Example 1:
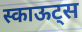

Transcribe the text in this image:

स्काऊट्स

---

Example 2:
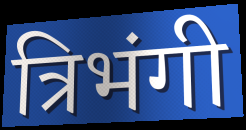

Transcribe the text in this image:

त्रिभंगी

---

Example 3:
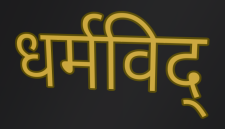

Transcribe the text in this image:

धर्मविद्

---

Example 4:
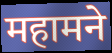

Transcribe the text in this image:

महामने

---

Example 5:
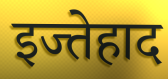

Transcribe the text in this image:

इज्तेहाद